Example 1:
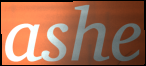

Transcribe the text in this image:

ashe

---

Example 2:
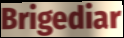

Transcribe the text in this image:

Brigediar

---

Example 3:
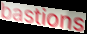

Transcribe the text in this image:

bastions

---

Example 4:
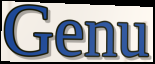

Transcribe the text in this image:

Genu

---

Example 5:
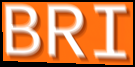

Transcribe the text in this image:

BRI